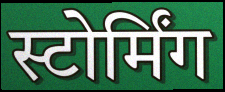
स्टोर्मिंग